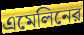
এমেলিনের